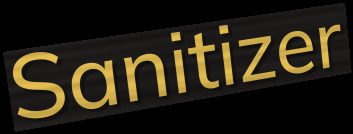
Sanitizer